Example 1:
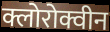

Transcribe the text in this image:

क्लोरोक्वीन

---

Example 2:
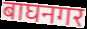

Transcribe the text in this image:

बाघनगर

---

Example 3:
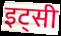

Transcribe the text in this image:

इट्सी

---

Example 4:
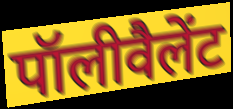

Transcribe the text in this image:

पॉलीवैलेंट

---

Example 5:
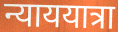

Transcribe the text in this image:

न्याययात्रा